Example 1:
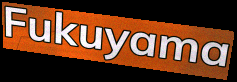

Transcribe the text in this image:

Fukuyama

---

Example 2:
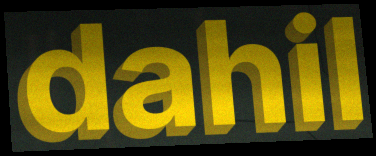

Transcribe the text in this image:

dahil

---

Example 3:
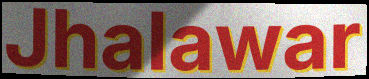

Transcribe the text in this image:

Jhalawar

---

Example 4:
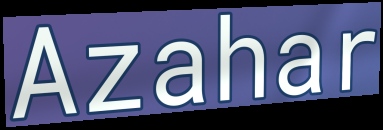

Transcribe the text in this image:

Azahar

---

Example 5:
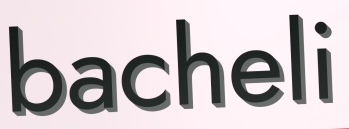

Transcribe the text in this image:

bacheli